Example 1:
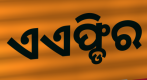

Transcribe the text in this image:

ଏଏଫ୍ଡିର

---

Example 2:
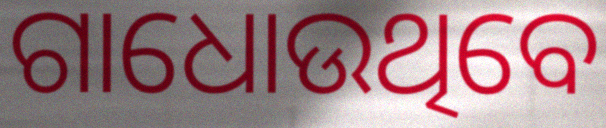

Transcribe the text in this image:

ଗାଧୋଉଥିବେ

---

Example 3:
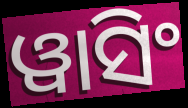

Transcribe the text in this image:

ୱାସିଂ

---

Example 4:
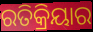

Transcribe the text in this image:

ରତିକ୍ରିୟାର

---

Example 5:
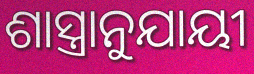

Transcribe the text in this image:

ଶାସ୍ତ୍ରାନୁଯାୟୀ